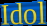
Idol